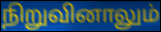
நிறுவினாலும்